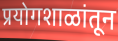
प्रयोगशाळांतून